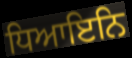
ਧਿਆਇਨਿ